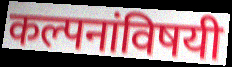
कल्पनांविषयी